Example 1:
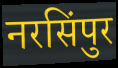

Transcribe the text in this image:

नरसिंपुर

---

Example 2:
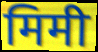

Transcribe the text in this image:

मिमी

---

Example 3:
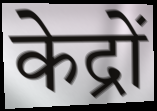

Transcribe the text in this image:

केद्रों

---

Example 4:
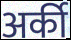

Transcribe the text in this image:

अर्की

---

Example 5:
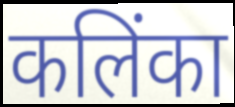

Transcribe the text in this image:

कलिंका